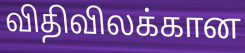
விதிவிலக்கான